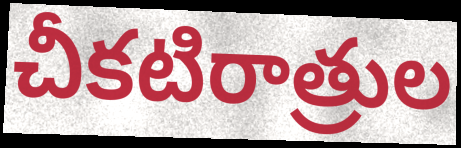
చీకటిరాత్రుల